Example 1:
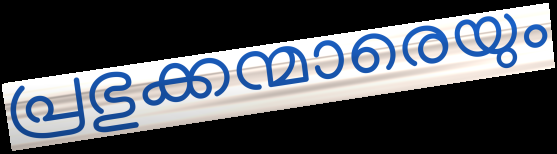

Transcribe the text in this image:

പ്രഭുക്കന്മാരെയും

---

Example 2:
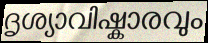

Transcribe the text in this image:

ദൃശ്യാവിഷ്കാരവും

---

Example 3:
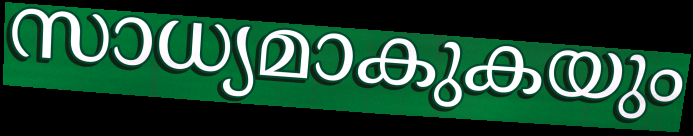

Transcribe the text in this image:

സാധ്യമാകുകയും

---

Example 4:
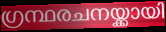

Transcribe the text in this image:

ഗ്രന്ഥരചനയ്ക്കായി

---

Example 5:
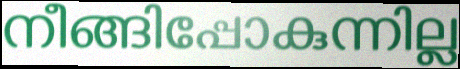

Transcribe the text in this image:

നീങ്ങിപ്പോകുന്നില്ല